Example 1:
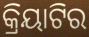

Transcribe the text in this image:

କ୍ରିୟାଟିର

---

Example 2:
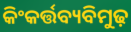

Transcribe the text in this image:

କିଂକର୍ତ୍ତବ୍ୟବିମୁଢ଼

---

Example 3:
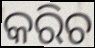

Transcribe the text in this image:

କରିଚ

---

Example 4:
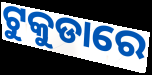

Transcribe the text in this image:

ଟୁକୁଡାରେ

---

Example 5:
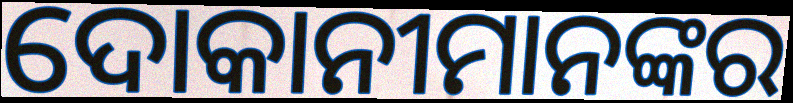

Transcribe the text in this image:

ଦୋକାନୀମାନଙ୍କର